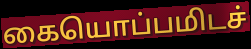
கையொப்பமிடச்